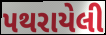
પથરાયેલી